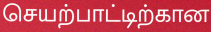
செயற்பாட்டிற்கான